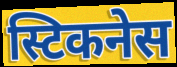
स्टिकनेस